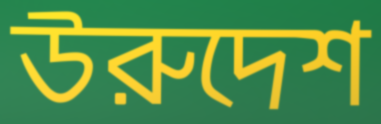
উরুদেশ